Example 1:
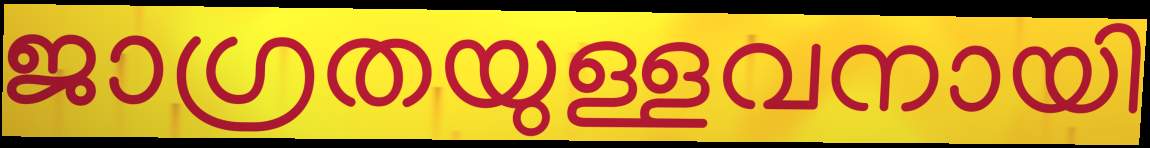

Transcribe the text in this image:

ജാഗ്രതയുള്ളവനായി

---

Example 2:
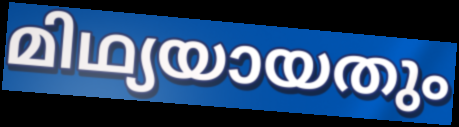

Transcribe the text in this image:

മിഥ്യയായതും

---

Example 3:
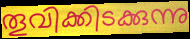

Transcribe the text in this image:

തൂവിക്കിടക്കുന്നു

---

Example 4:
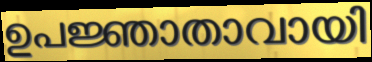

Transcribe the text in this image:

ഉപജ്ഞാതാവായി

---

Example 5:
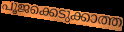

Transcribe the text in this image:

പൂജക്കെടുക്കാത്ത